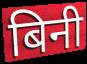
बिनी